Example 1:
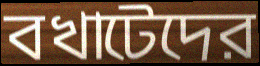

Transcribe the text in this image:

বখাটেদের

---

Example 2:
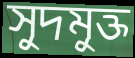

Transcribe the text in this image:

সুদমুক্ত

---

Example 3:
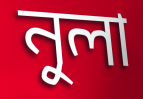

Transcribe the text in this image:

নুলা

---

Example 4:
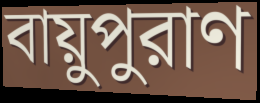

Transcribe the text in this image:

বায়ুপুরাণ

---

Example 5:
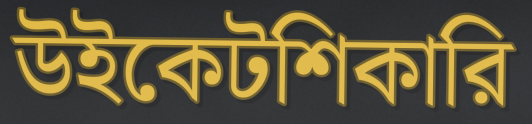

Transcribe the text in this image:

উইকেটশিকারি